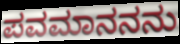
ಪವಮಾನನನು